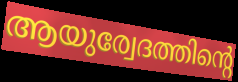
ആയുര്വേദത്തിന്റെ